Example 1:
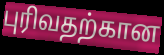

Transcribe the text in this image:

புரிவதற்கான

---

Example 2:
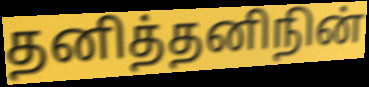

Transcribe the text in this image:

தனித்தனிநின்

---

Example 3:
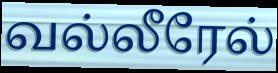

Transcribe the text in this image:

வல்லீரேல்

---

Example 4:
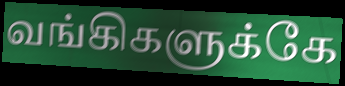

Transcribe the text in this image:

வங்கிகளுக்கே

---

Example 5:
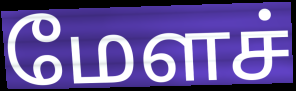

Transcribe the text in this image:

மேளச்